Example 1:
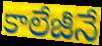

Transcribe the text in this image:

కాలేజీనే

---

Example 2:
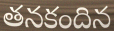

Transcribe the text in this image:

తనకందిన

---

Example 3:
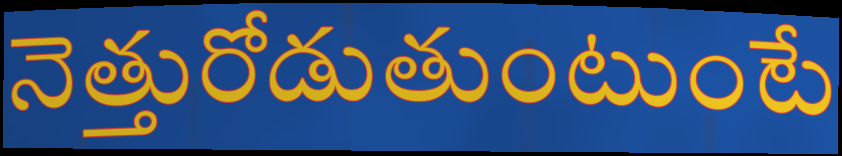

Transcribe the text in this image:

నెత్తురోడుతుంటుంటే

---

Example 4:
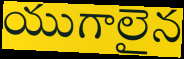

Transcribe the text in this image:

యుగాలైన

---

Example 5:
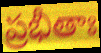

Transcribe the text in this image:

ప్రభీతాః